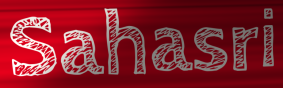
Sahasri